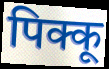
पिक्कू